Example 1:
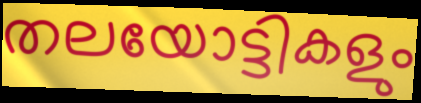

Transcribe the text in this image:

തലയോട്ടികളും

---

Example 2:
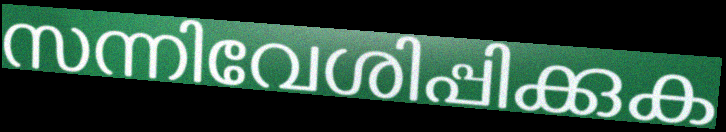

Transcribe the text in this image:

സന്നിവേശിപ്പിക്കുക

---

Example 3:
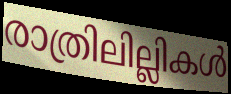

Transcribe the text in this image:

രാത്രിലില്ലികൾ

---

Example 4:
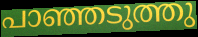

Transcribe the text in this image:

പാഞ്ഞടുത്തു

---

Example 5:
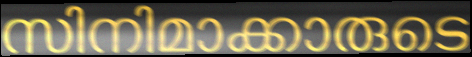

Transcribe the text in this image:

സിനിമാക്കാരുടെ